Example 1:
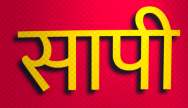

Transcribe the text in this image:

सापी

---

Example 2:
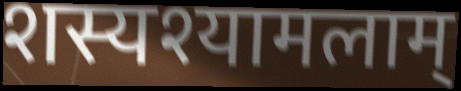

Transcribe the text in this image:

शस्यश्यामलाम्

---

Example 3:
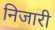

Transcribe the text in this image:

निजारी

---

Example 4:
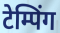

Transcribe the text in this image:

टेम्पिंग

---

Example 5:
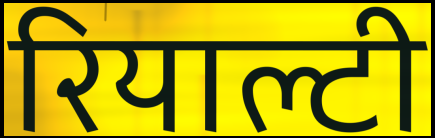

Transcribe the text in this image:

रियाल्टी